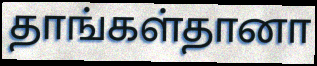
தாங்கள்தானா